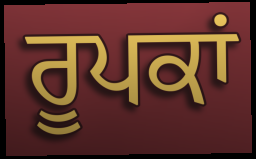
ਰੂਪਕਾਂ